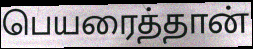
பெயரைத்தான்